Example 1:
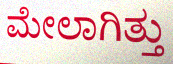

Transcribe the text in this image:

ಮೇಲಾಗಿತ್ತು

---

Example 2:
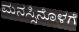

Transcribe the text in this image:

ಮನಸ್ಸಿನೊಳಗೆ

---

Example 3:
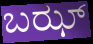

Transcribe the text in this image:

ಬಝ್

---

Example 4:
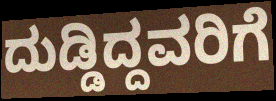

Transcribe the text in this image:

ದುಡ್ಡಿದ್ದವರಿಗೆ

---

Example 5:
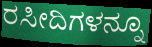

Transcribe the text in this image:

ರಸೀದಿಗಳನ್ನೂ